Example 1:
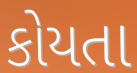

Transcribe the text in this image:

કોયતા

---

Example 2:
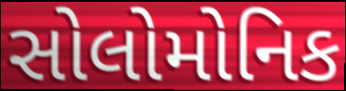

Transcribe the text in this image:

સોલોમોનિક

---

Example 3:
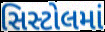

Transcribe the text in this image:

સિસ્ટોલમાં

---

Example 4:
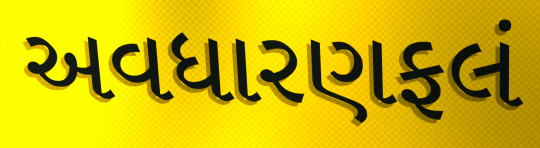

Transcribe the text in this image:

અવધારણફલં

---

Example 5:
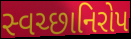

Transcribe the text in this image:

સ્વચ્છાનિરોપ